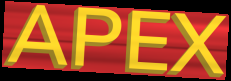
APEX